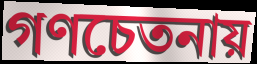
গণচেতনায়